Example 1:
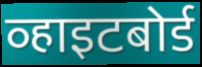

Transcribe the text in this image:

व्हाइटबोर्ड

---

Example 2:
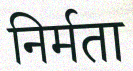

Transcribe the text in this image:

निर्मता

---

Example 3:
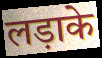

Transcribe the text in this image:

लड़ाके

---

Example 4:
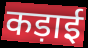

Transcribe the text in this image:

कड़ाई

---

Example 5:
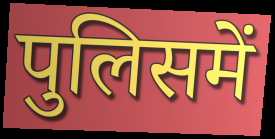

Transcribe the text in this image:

पुलिसमें